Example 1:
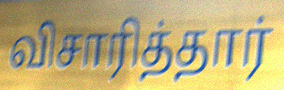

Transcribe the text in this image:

விசாரித்தார்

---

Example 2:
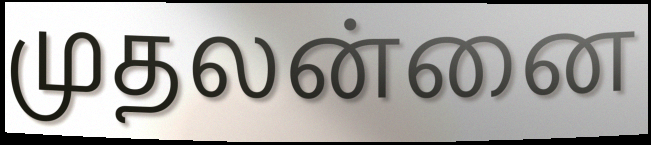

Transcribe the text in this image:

முதலன்னை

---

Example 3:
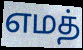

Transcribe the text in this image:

எமத்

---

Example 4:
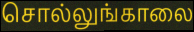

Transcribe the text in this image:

சொல்லுங்காலை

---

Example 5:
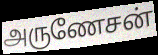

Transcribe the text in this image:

அருணேசன்